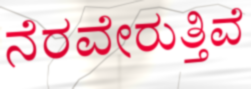
ನೆರವೇರುತ್ತಿವೆ